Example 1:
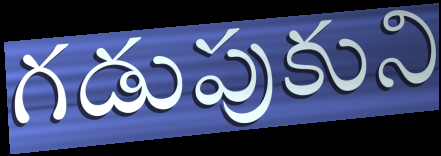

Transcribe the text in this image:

గడుపుకుని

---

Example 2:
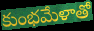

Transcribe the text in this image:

కుంభమేళాతో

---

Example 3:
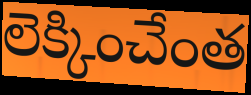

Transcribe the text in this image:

లెక్కించేంత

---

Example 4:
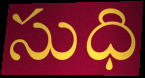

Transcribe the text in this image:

సుధి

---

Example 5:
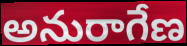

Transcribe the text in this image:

అనురాగేణ